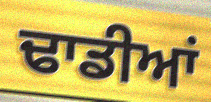
ਢਾਡੀਆਂ